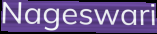
Nageswari